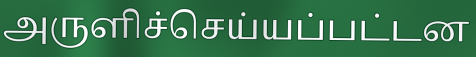
அருளிச்செய்யப்பட்டன